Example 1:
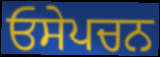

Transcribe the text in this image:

ਓਸੇਪਚਨ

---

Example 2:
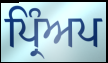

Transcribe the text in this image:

ਪ੍ਰਿੰਅਪ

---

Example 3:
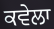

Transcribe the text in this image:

ਕਵੇਲਾ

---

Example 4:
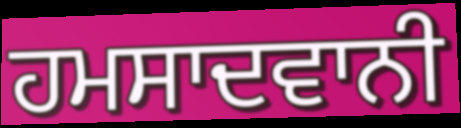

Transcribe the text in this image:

ਹਮਸਾਦਵਾਨੀ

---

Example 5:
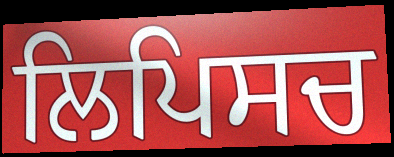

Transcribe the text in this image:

ਲਿਪਿਸਚ